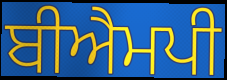
ਬੀਐਮਪੀ